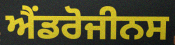
ਐਂਡਰੋਜੀਨਸ